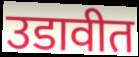
उडावीत